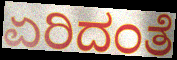
ಏರಿದಂತೆ